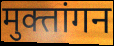
मुक्तांगन